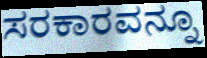
ಸರಕಾರವನ್ನೂ